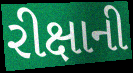
રીક્ષાની